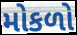
મોકળો